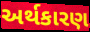
અર્થકારણ